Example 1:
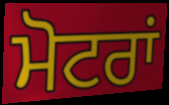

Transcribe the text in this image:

ਮੋਟਰਾਂ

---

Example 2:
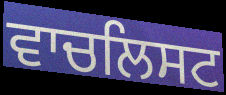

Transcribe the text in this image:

ਵਾਚਲਿਸਟ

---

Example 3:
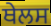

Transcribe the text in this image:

ਥੇਲਸ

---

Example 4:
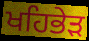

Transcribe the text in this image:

ਖਹਿਭੇੜ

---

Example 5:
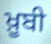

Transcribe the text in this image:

ਖ਼ੂਬੀ